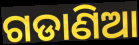
ଗଡାଣିଆ